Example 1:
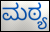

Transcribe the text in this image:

ಮಠ್ಯ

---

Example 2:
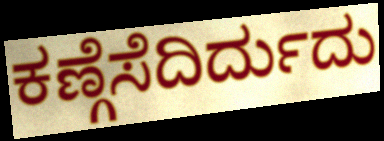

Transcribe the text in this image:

ಕಣ್ಗೆಸೆದಿರ್ದುದು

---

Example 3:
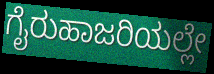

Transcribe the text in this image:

ಗೈರುಹಾಜರಿಯಲ್ಲೇ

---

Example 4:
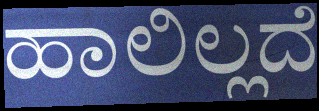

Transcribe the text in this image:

ಹಾಲಿಲ್ಲದೆ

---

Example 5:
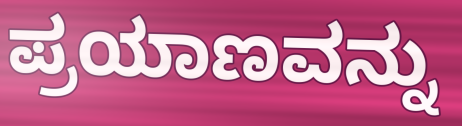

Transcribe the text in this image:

ಪ್ರಯಾಣವನ್ನು